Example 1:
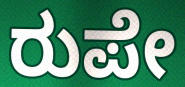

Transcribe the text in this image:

ರುಪೇ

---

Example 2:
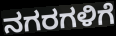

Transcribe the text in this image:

ನಗರಗಳಿಗೆ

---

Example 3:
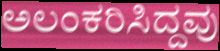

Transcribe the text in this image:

ಅಲಂಕರಿಸಿದ್ದವು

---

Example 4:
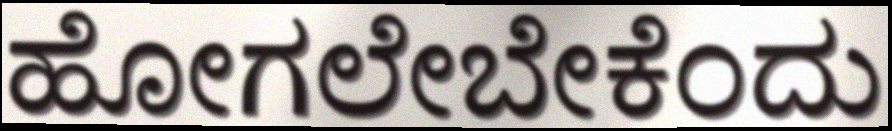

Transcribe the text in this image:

ಹೋಗಲೇಬೇಕೆಂದು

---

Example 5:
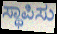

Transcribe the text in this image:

ಸ್ಥಾಪಿಸು